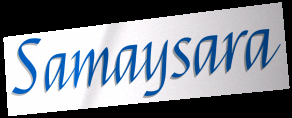
Samaysara